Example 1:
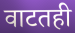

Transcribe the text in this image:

वाटतही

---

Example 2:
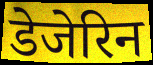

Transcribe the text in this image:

डेजेरिन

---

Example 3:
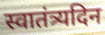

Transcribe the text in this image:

स्वातंत्र्यदिन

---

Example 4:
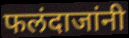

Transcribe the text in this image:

फलंदाजांनी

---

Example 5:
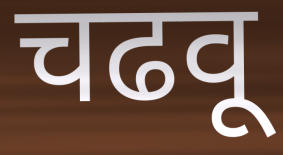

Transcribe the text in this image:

चढवू